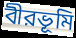
বীরভূমি